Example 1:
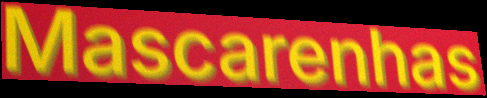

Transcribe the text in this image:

Mascarenhas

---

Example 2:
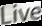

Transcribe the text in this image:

Live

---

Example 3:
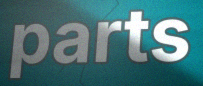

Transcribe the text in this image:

parts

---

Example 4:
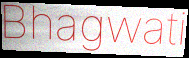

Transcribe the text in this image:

Bhagwati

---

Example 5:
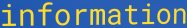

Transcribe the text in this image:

information